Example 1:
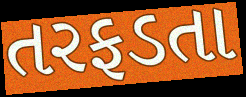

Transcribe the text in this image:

તરફડતા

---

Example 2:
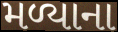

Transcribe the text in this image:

મળ્યાના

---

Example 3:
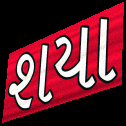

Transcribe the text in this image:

શયા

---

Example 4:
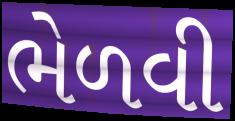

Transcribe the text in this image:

ભેળવી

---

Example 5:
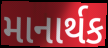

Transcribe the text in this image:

માનાર્થક